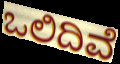
ಒಲಿದಿವೆ